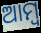
ଆମ୍ୱ